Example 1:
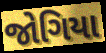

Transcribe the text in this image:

જોગિયા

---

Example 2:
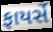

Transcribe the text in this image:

ફાયર્સે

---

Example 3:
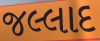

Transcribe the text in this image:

જલ્લાદ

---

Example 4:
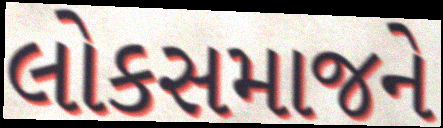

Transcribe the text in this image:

લોકસમાજને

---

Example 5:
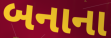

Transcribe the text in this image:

બનાના